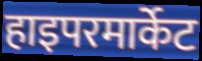
हाइपरमार्केट